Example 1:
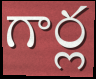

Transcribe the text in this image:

గార్ల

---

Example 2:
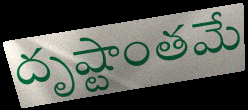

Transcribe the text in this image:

దృష్టాంతమే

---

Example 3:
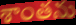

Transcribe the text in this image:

శాంతను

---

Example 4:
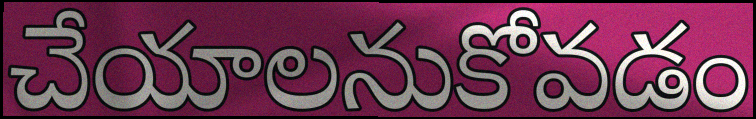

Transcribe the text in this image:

చేయాలనుకోవడం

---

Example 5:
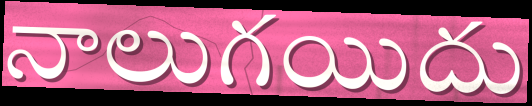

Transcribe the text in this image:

నాలుగయిదు